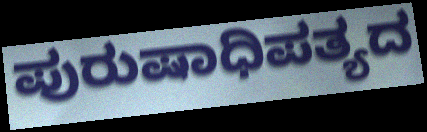
ಪುರುಷಾಧಿಪತ್ಯದ